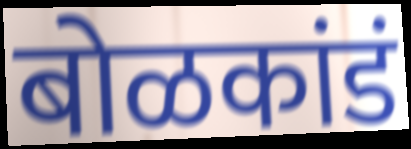
बोळकांडं